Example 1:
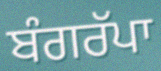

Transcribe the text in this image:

ਬੰਗਰੱਪਾ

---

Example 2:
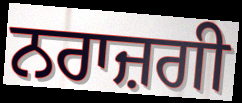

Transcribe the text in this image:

ਨਰਾਜ਼ਗੀ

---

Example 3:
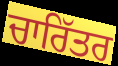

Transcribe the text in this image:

ਚਾਰਿੱਤਰ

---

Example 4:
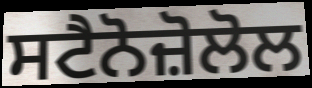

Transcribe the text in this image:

ਸਟੈਨੋਜ਼ੋਲੋਲ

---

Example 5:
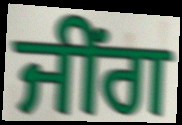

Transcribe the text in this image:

ਜੀਂਗ